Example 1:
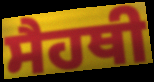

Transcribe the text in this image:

ਸੈਹਥੀ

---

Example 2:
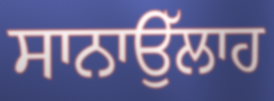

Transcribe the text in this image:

ਸਾਨਾਉੱਲਾਹ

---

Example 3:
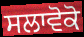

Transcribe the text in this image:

ਸਲਾਵੋਕੋ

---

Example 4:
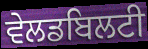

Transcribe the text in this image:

ਵੇਲਡਬਿਲਟੀ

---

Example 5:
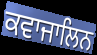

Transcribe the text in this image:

ਕਵਾਜਾਲਿਨ